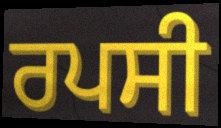
ਰਪਸੀ